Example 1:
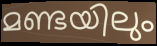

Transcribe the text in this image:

മണ്ടയിലും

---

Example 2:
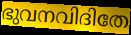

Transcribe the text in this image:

ഭുവനവിദിതേ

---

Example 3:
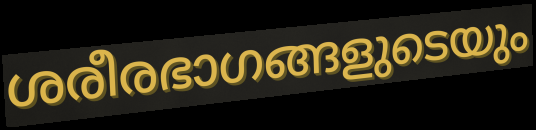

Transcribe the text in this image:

ശരീരഭാഗങ്ങളുടെയും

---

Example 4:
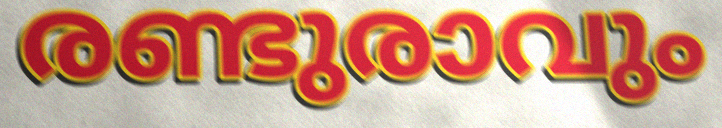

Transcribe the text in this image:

രണ്ടുരാവും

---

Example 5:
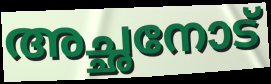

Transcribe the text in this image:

അച്ഛനോട്